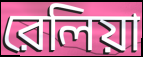
রেলিয়া